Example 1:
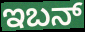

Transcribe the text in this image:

ಇಬನ್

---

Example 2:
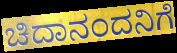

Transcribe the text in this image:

ಚಿದಾನಂದನಿಗೆ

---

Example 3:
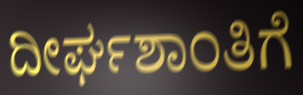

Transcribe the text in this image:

ದೀರ್ಘಶಾಂತಿಗೆ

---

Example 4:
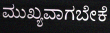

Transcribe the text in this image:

ಮುಖ್ಯವಾಗಬೇಕೆ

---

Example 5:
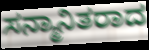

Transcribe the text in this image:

ಸನ್ಮಾನಿತರಾದ